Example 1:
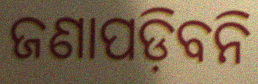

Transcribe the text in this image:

ଜଣାପଡ଼ିବନି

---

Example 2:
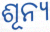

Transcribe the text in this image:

ଶୂନ୍ୟ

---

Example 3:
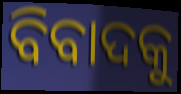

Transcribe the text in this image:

ବିବାଦକୁ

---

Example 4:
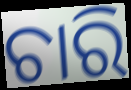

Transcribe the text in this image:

ଚାରି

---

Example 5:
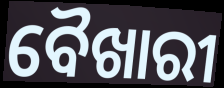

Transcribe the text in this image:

ବୈଖାରୀ